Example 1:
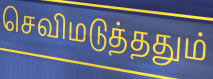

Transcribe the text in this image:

செவிமடுத்ததும்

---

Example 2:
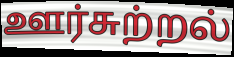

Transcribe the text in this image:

ஊர்சுற்றல்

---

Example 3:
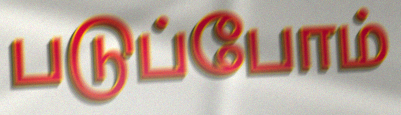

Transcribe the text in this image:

படுப்போம்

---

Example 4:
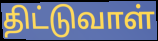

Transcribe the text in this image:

திட்டுவாள்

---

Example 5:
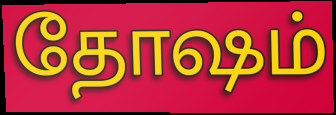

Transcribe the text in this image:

தோஷம்